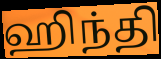
ஹிந்தி